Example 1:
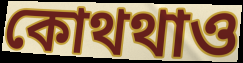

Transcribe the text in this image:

কোথথাও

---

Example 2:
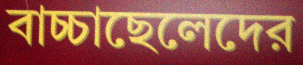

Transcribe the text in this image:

বাচ্চাছেলেদের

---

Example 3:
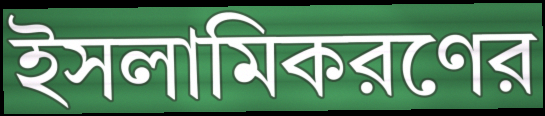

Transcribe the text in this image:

ইসলামিকরণের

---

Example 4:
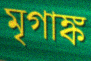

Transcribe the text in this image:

মৃগাঙ্ক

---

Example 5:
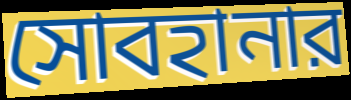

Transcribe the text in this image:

সোবহানার